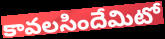
కావలసిందేమిటో